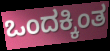
ಒಂದಕ್ಕಿಂತ